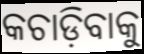
କଚାଡ଼ିବାକୁ